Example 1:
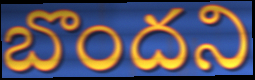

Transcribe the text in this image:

బొందని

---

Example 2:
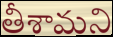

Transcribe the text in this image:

తీశామని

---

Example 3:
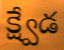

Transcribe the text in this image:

క్ష్వేడ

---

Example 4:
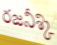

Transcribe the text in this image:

రజనీశ్కి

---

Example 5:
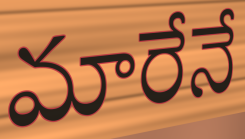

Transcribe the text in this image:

మారేనే